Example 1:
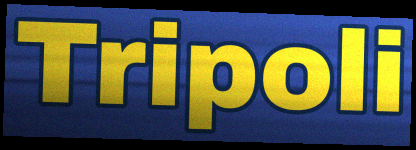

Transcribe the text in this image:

Tripoli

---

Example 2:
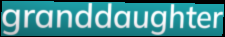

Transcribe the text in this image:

granddaughter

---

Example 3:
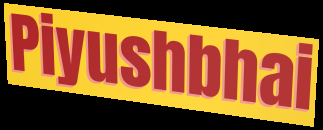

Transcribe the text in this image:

Piyushbhai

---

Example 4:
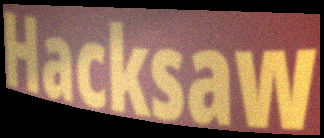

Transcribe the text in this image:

Hacksaw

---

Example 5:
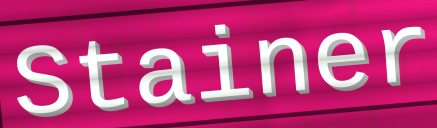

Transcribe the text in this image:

Stainer